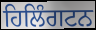
ਹਿਲਿੰਗਟਨ